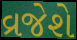
વ્રજેશે